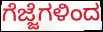
ಗೆಜ್ಜೆಗಳಿಂದ